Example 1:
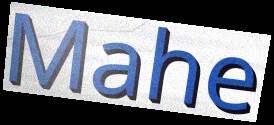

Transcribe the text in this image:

Mahe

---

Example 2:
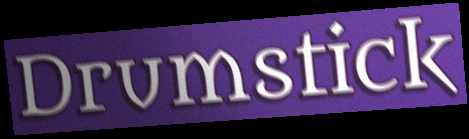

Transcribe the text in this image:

Drumstick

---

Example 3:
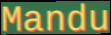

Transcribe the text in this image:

Mandu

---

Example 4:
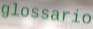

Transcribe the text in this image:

glossario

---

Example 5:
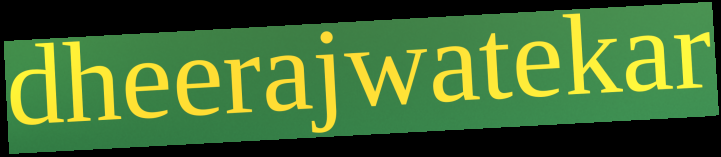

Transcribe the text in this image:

dheerajwatekar